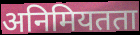
अनिमियतता